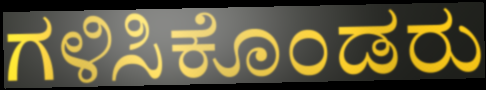
ಗಳಿಸಿಕೊಂಡರು